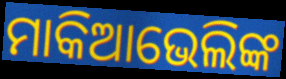
ମାକିଆଭେଲିଙ୍କ